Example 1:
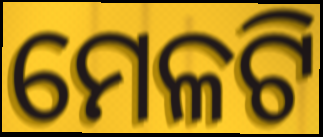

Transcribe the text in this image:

ମେଳଟି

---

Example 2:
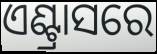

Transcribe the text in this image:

ଏଣ୍ଟ୍ରାସରେ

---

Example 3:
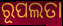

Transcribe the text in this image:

ରୂପଲତା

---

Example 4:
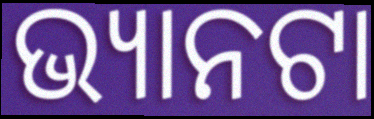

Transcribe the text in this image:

ଭ୍ୟାନଟା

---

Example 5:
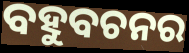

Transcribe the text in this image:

ବହୁବଚନର